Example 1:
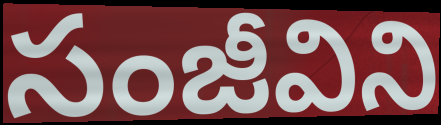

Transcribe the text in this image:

సంజీవిని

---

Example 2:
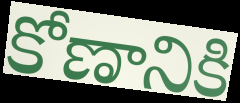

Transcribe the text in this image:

కోణానికి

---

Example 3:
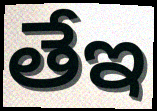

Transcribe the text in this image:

తేఇ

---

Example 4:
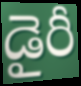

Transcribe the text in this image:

డైరీ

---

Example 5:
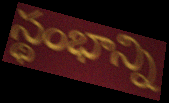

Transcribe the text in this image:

స్థంభాన్ని